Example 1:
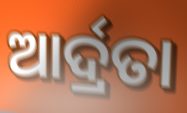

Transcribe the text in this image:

ଆର୍ଦ୍ରତା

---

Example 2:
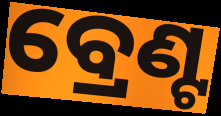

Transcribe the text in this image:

ବ୍ରେଣ୍ଟ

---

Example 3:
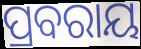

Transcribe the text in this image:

ପ୍ରବରାୟ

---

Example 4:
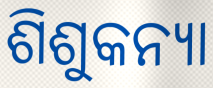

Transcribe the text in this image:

ଶିଶୁକନ୍ଯା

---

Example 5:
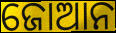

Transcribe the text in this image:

ଜୋଆନ